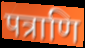
पत्राणि